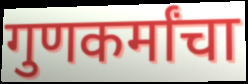
गुणकर्मांचा